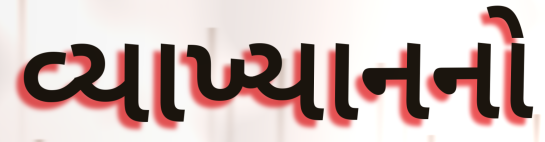
વ્યાખ્યાનનો